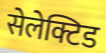
सेलेक्टिड